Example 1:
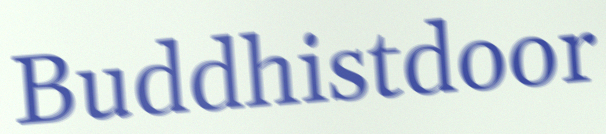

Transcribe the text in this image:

Buddhistdoor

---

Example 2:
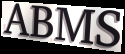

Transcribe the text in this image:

ABMS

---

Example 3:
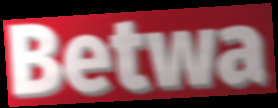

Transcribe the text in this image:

Betwa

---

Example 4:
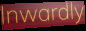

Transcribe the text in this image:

Inwardly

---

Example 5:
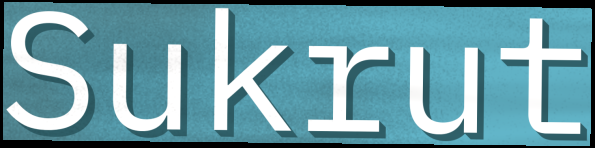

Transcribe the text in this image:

Sukrut